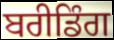
ਬਰੀਡਿੰਗ